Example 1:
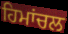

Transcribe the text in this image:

ਹਿਮਾਂਚਲ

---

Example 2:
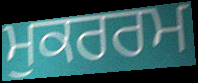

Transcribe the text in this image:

ਮੁਕਰਰਮ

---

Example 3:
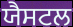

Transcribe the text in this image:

ਯੈਸਟਲ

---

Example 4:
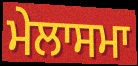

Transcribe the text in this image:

ਮੇਲਾਸਮਾ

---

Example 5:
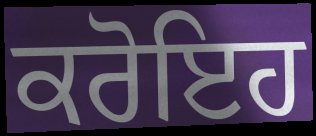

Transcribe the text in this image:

ਕਰੋਇਹ